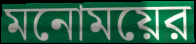
মনোময়ের